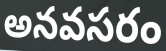
అనవసరం